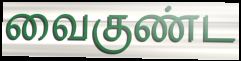
வைகுண்ட